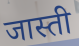
जास्ती